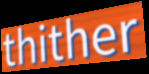
thither